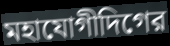
মহাযোগীদিগের